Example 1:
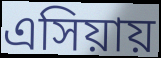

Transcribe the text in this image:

এসিয়ায়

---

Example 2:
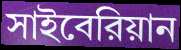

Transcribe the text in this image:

সাইবেরিয়ান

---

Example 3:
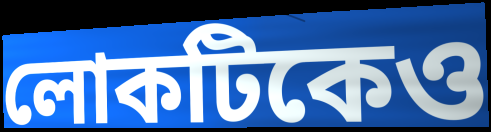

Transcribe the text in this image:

লোকটিকেও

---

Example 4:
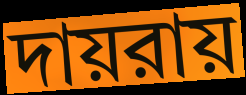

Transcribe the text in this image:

দায়রায়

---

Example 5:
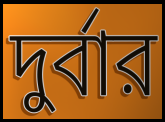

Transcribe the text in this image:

দুর্বার